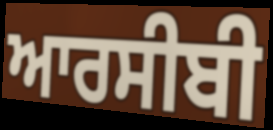
ਆਰਸੀਬੀ